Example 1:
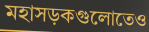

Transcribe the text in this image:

মহাসড়কগুলোতেও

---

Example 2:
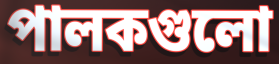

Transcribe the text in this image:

পালকগুলো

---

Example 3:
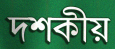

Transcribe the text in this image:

দশকীয়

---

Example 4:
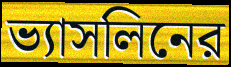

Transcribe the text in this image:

ভ্যাসলিনের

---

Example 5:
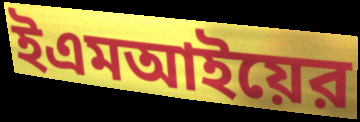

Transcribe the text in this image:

ইএমআইয়ের